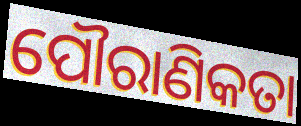
ପୌରାଣିକତା